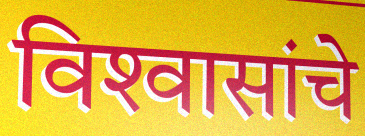
विश्‍वासांचे